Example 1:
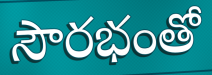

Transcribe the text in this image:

సౌరభంతో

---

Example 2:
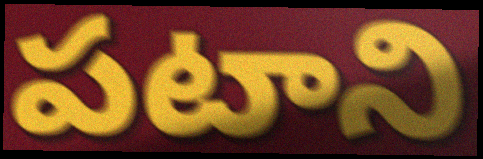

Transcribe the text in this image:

పటాని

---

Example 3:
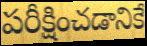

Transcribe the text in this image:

పరీక్షించడానికే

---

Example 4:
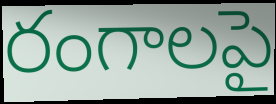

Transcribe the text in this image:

రంగాలపై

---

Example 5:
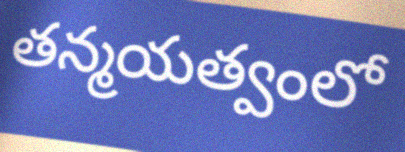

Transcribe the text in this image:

తన్మయత్వంలో